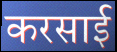
करसाई